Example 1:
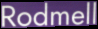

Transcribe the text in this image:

Rodmell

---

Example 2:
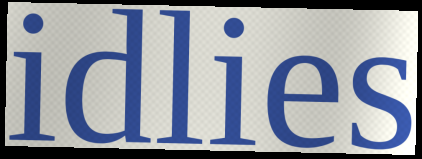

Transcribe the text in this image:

idlies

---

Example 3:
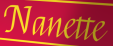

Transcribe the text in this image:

Nanette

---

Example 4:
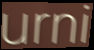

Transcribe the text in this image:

urni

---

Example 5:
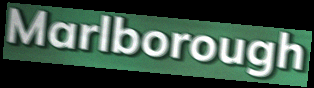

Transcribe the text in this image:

Marlborough